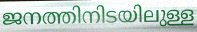
ജനത്തിനിടയിലുള്ള